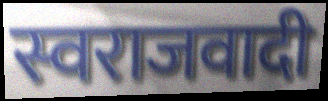
स्वराजवादी